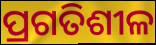
ପ୍ରଗତିଶୀଳ